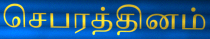
செபரத்தினம்